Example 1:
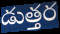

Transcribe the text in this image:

డుత్తర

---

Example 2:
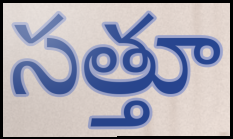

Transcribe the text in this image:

సత్తూ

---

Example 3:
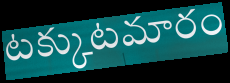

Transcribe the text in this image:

టక్కుటమారం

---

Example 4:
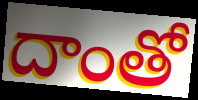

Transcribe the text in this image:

దాంతో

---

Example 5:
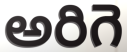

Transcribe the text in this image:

అరిగె